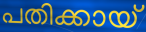
പതിക്കായ്